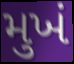
મુખં